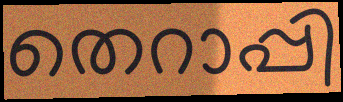
തെറാപ്പി